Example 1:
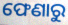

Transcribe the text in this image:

ଫେଣାରୁ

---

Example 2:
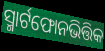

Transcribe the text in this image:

ସ୍ମାର୍ଟଫୋନଭିତ୍ତିକ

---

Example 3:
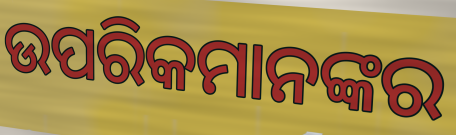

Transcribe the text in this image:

ଉପରିକମାନଙ୍କର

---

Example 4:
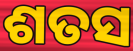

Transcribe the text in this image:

ଶତସ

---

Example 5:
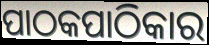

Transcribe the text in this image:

ପାଠକପାଠିକାର